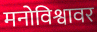
मनोविश्वावर